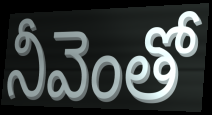
నీవెంతో